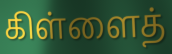
கிள்ளைத்